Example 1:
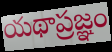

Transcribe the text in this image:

యథాప్రజ్ఞం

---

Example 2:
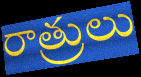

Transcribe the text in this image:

రాత్రులు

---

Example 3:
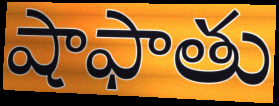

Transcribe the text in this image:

షాఫాతు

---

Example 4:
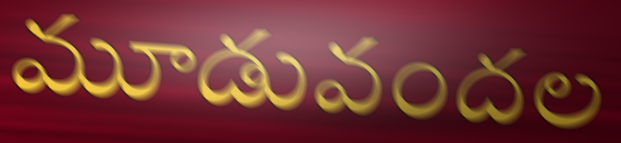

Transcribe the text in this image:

మూడువందల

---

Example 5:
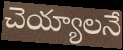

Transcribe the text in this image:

చెయ్యాలనే